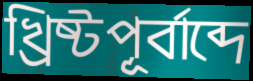
খ্রিষ্টপূর্বাব্দে